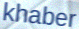
khaber